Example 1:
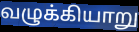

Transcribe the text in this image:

வழுக்கியாறு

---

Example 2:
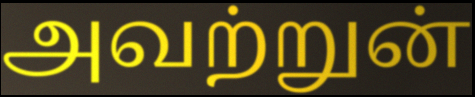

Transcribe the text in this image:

அவற்றுன்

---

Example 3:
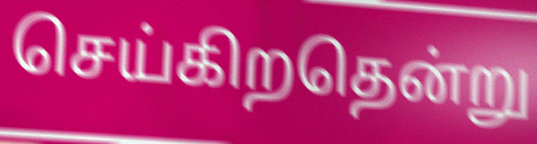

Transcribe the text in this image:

செய்கிறதென்று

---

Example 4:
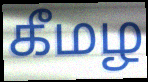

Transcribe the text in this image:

கீமழ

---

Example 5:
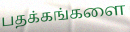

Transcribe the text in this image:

பதக்கங்களை